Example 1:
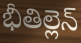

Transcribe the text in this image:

భీతిల్లెన్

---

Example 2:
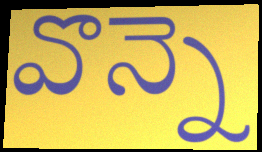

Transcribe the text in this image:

వొన్నె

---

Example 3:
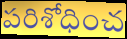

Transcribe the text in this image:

పరిశోధించ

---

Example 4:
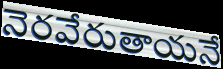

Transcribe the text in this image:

నెరవేరుతాయనే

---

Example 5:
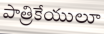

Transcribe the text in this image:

పాత్రికేయులూ